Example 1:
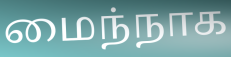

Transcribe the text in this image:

மைந்நாக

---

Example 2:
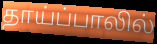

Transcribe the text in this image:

தாய்ப்பாலில்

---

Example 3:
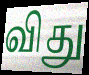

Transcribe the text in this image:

விது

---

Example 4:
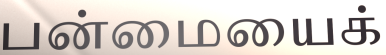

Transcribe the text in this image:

பன்மையைக்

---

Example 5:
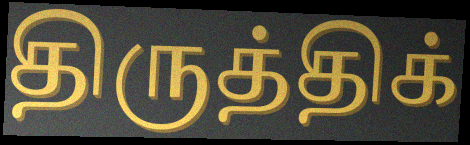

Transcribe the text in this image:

திருத்திக்